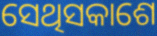
ସେଥିସକାଶେ